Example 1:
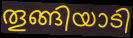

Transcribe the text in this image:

തൂങ്ങിയാടി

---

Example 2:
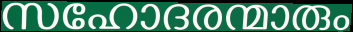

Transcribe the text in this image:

സഹോദരന്മാരും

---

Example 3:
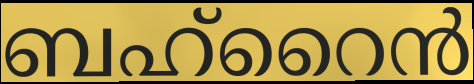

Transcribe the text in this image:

ബഹ്റൈൻ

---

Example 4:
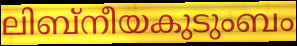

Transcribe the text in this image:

ലിബ്നീയകുടുംബം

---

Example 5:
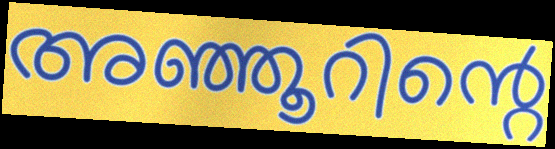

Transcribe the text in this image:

അഞ്ഞൂറിന്റെ